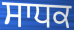
ਸਾਧਕ